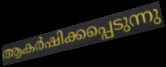
ആകർഷിക്കപ്പെടുന്നു